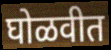
घोळवीत